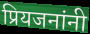
प्रियजनांनी